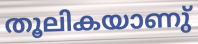
തൂലികയാണു്